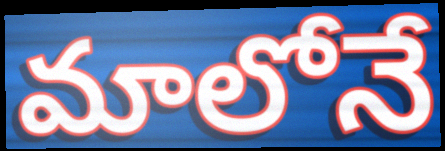
మాలోనే